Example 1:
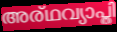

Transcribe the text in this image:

അര്ഥവ്യാപ്തി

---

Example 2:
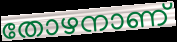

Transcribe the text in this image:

തോഴനാണ്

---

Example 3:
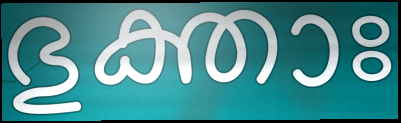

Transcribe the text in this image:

ഭുക്താഃ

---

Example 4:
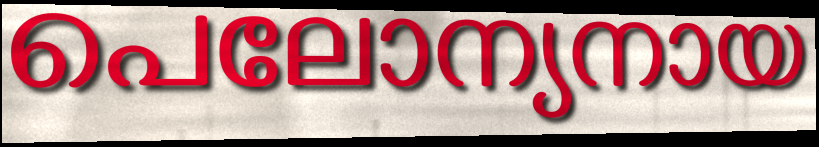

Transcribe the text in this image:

പെലോന്യനായ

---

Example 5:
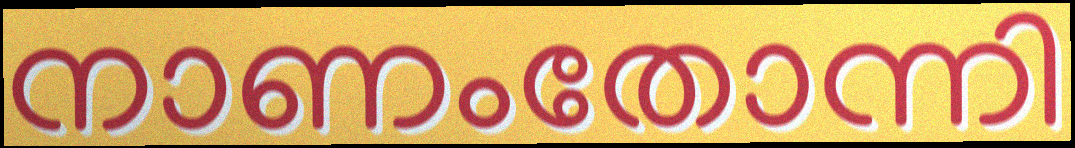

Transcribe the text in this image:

നാണംതോന്നി